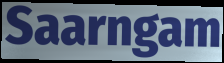
Saarngam